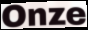
Onze